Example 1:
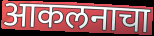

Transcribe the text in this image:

आकलनाचा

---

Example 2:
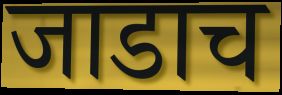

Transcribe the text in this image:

जाडाच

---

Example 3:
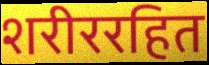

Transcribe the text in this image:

शरीररहित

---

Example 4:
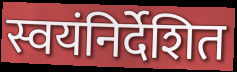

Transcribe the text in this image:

स्वयंनिर्देशित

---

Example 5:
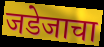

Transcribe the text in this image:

जडेजाचा